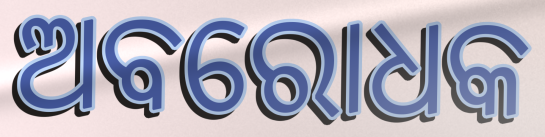
ଅବରୋଧକ